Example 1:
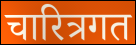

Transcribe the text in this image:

चारित्रगत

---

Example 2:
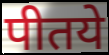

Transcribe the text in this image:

पीतये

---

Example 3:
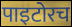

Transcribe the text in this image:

पाइटोरच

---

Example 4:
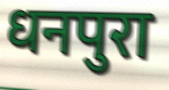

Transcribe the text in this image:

धनपुरा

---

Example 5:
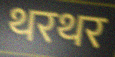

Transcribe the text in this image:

थरथर